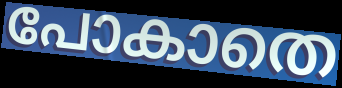
പോകാതെ